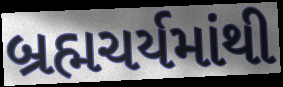
બ્રહ્મચર્યમાંથી